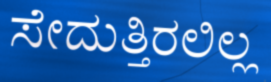
ಸೇದುತ್ತಿರಲಿಲ್ಲ